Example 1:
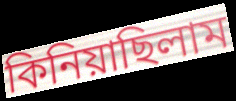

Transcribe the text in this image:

কিনিয়াছিলাম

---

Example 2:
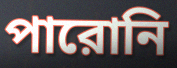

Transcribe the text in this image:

পারোনি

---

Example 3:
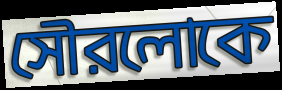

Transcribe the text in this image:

সৌরলোকে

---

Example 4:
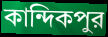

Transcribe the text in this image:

কান্দিকপুর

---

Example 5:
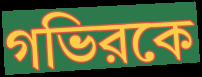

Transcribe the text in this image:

গভিরকে